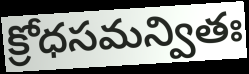
క్రోధసమన్వితః